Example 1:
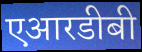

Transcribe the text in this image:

एआरडीबी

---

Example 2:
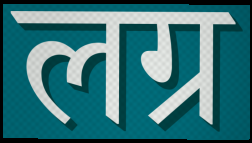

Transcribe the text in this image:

लग्र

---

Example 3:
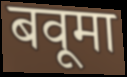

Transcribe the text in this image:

बवूमा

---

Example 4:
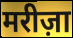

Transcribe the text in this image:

मरीज़ा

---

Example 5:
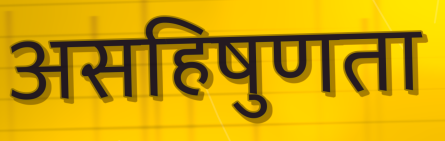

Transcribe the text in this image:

असहिषुणता